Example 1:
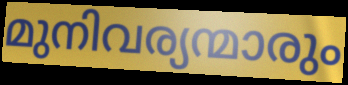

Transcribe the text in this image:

മുനിവര്യന്മാരും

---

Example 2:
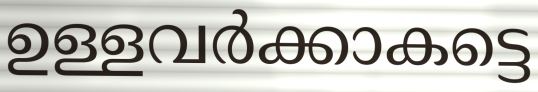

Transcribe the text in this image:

ഉള്ളവർക്കാകട്ടെ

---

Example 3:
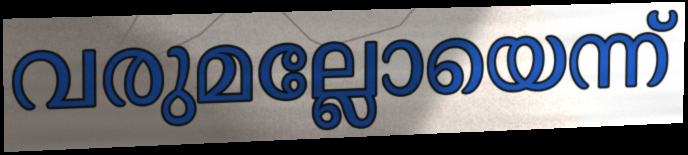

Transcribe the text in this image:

വരുമല്ലോയെന്ന്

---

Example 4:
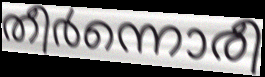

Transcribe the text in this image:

തീർന്നൊരീ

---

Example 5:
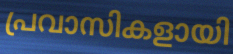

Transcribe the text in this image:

പ്രവാസികളായി